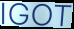
IGOT